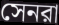
সেনরা